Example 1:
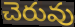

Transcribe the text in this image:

చెరువు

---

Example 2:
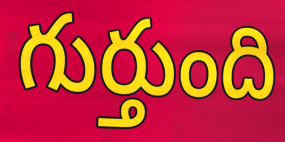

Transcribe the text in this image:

గుర్తుంది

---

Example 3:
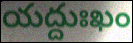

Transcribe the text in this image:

యద్దుఃఖం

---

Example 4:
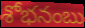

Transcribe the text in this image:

శోభనంబు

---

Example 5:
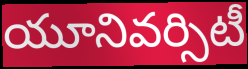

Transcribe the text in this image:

యూనివర్సిటీ